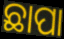
ଛାପା